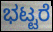
ಭಟ್ಟರೆ